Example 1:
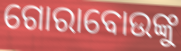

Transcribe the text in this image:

ଗୋରାବୋଉଙ୍କୁ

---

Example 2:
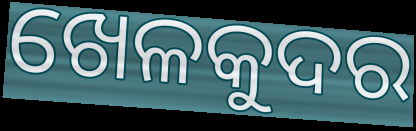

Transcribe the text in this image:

ଖେଳକୁଦର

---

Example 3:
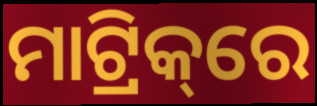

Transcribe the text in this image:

ମାଟ୍ରିକ୍‌ରେ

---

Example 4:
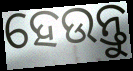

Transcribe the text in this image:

ହେଉନ୍ତୁ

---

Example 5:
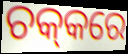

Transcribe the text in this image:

ଚକ୍‌କରେ